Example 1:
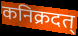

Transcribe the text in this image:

कनिक्रदत्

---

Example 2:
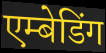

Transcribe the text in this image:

एम्बेडिंग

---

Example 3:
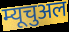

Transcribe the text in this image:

म्यूचुअल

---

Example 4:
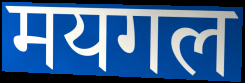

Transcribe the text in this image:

मयगल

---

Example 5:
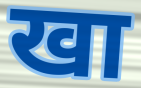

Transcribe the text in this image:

खा